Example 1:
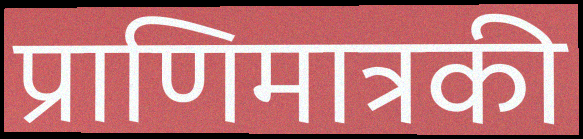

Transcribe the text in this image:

प्राणिमात्रकी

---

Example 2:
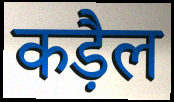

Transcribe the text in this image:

कड़ैल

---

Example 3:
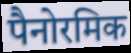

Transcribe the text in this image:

पैनोरमिक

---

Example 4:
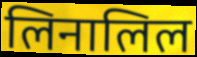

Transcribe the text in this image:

लिनालिल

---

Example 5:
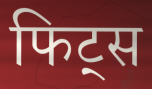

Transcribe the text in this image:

फिट्स